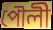
পৌলী